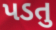
પડતુ